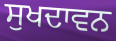
ਸੁਖਦਾਵਨ